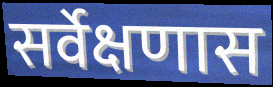
सर्वेक्षणास